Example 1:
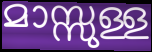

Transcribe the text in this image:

മാസ്സുള്ള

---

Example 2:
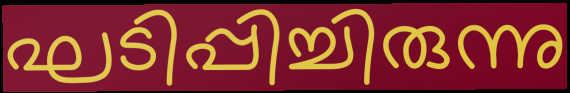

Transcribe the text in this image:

ഘടിപ്പിച്ചിരുന്നു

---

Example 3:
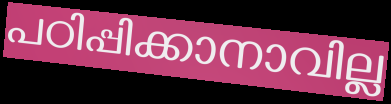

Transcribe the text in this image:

പഠിപ്പിക്കാനാവില്ല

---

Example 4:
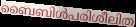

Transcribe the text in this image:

ബൈബിൾപരിശീലിത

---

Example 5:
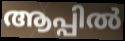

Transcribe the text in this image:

ആപ്പിൽ